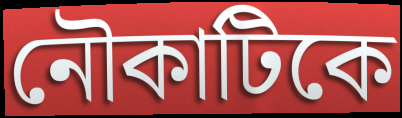
নৌকাটিকে